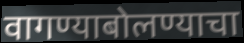
वागण्याबोलण्याचा